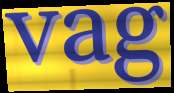
vag